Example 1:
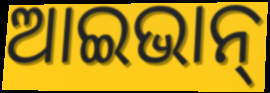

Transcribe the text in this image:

ଆଇଭାନ୍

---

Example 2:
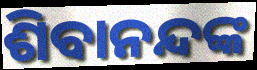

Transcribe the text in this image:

ଶିବାନନ୍ଦଙ୍କ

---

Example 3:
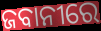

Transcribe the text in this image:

ଜବାନୀରେ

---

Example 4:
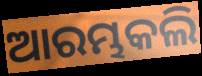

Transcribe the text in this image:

ଆରମ୍ଭକଲି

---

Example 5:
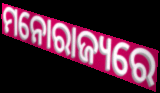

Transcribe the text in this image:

ମନୋରାଜ୍ୟରେ